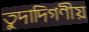
তুদাদিগণীয়